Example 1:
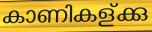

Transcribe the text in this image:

കാണികള്ക്കു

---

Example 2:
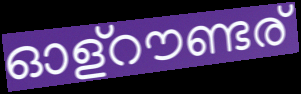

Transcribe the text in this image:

ഓള്റൗണ്ടര്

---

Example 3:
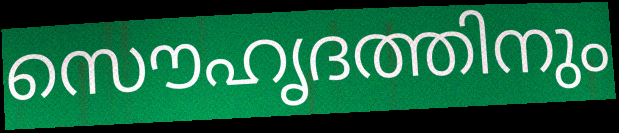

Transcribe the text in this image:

സൌഹൃദത്തിനും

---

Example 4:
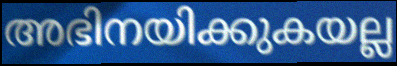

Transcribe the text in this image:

അഭിനയിക്കുകയല്ല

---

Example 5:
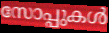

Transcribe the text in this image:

സോപ്പുകൾ